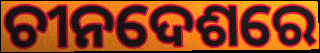
ଚୀନଦେଶରେ